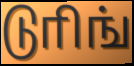
டுரிங்